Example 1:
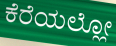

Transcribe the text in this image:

ಕೆರೆಯಲ್ಲೋ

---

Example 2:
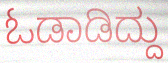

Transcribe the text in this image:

ಓಡಾಡಿದ್ದು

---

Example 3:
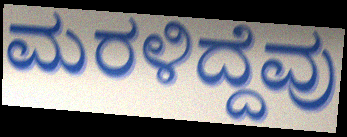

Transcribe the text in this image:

ಮರಳಿದ್ದೆವು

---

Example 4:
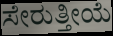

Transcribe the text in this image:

ಸೇರುತ್ತೀಯೆ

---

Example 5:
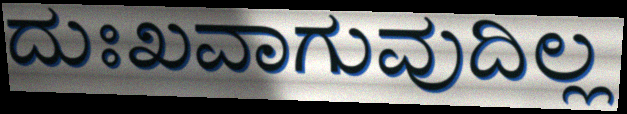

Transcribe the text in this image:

ದುಃಖವಾಗುವುದಿಲ್ಲ